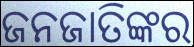
ଜନଜାତିଙ୍କର